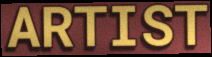
ARTIST